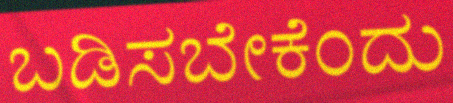
ಬಡಿಸಬೇಕೆಂದು